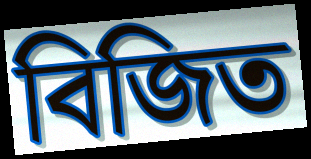
বিজিত